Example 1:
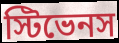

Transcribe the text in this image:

স্টিভেনস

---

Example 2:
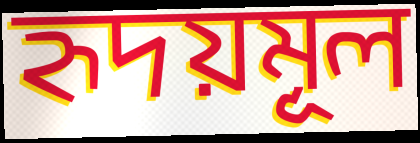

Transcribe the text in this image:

হৃদয়মূল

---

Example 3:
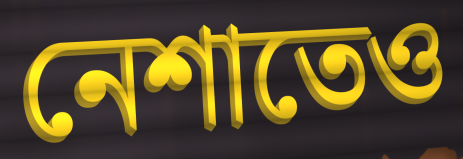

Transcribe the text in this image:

নেশাতেও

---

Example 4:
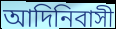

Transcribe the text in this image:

আদিনিবাসী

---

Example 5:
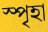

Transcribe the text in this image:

স্পৃহা